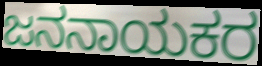
ಜನನಾಯಕರ